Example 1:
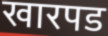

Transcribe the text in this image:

खारपड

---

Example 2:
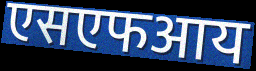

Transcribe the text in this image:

एसएफआय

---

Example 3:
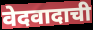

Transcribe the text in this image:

वेदवादाची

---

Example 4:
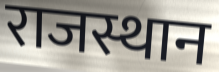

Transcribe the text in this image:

राजस्थान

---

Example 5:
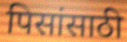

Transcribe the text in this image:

पिसांसाठी